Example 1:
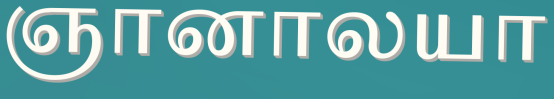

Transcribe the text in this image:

ஞானாலயா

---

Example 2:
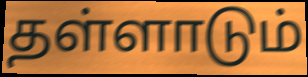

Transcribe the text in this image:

தள்ளாடும்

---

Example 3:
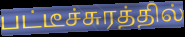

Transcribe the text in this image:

பட்டீச்சுரத்தில்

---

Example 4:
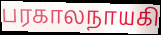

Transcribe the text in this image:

பரகாலநாயகி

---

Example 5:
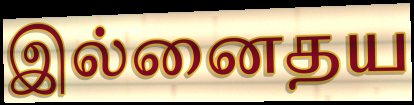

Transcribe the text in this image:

இல்னைதய